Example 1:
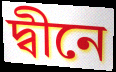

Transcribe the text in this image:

দ্বীনে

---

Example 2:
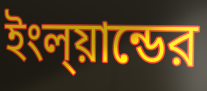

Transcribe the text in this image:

ইংল্য়ান্ডের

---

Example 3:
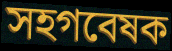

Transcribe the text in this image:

সহগবেষক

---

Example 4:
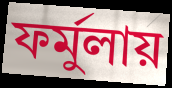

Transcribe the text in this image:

ফর্মুলায়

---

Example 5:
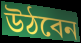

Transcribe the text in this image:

উঠবেন